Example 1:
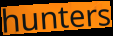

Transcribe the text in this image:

hunters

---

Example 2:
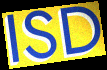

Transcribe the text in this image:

ISD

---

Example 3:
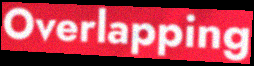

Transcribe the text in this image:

Overlapping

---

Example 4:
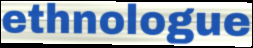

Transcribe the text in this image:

ethnologue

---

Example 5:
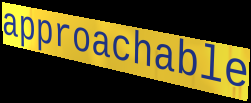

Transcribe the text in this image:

approachable